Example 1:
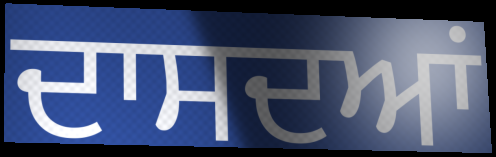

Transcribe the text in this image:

ਦਾਸਦਆਂ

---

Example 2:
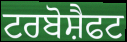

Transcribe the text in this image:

ਟਰਬੋਸ਼ੈਫਟ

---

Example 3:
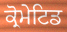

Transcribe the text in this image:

ਕ੍ਰੋਮੇਟਿਡ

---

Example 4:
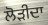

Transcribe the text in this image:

ਲੋੜੀਦਾ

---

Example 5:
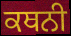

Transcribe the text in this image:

ਕਥਨੀ